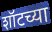
शॉटच्या